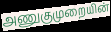
அணுகுமுறையின்